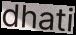
dhati